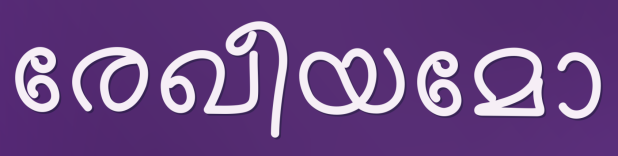
രേഖീയമോ